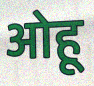
ओहू